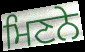
ਮਿਣਨੇ